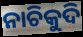
ନାଚିକୁଦି